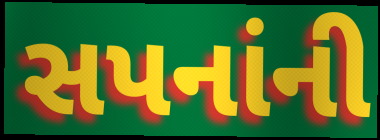
સપનાંની